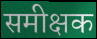
समीक्षक